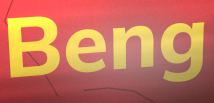
Beng